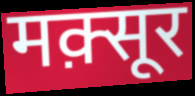
मक़्सूर